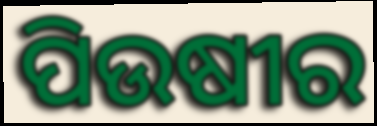
ପିଉଷୀର